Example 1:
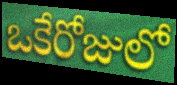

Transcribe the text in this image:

ఒకేరోజులో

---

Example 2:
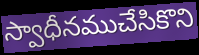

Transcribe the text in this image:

స్వాధీనముచేసికొని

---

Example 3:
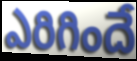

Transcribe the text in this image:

ఎరిగిందే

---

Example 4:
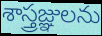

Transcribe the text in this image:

శాస్త్రజ్ఞులను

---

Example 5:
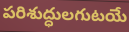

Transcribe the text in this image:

పరిశుద్ధులగుటయే